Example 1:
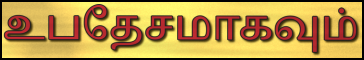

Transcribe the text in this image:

உபதேசமாகவும்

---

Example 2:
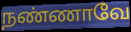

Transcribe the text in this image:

நண்ணாவே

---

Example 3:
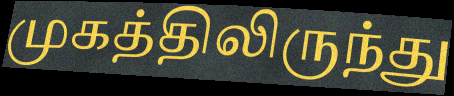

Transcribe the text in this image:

முகத்திலிருந்து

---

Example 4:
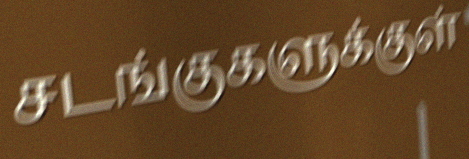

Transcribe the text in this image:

சடங்குகளுக்குள்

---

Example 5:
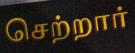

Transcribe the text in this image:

செற்றார்